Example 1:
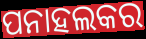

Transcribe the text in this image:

ପନାହଲକର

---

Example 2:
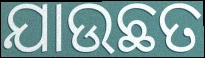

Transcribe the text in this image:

ଯାଉଛତ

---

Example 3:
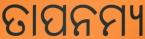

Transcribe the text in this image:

ତାପନମ୍ୟ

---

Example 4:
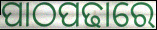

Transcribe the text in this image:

ପାଠପଢାରେ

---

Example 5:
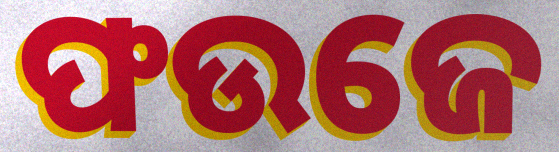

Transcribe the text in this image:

ଫଉଜେ